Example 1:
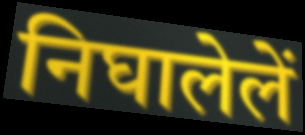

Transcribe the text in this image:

निघालेलें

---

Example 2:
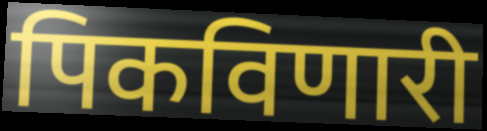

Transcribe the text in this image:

पिकविणारी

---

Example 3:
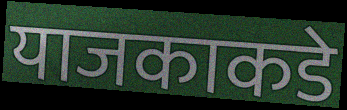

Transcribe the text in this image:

याजकाकडे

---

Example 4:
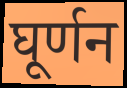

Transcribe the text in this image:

घूर्णन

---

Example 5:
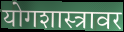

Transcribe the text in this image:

योगशास्त्रावर